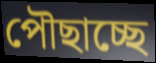
পৌছাচ্ছে